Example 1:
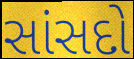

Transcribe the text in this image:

સાંસદો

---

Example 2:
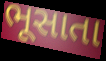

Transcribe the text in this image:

ભૂસાતા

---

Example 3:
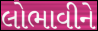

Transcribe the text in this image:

લોભાવીને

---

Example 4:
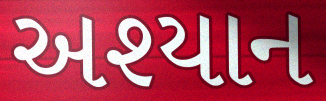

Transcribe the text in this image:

અશ્યાન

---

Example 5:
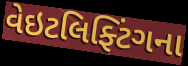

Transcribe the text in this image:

વેઇટલિફ્ટિંગના